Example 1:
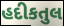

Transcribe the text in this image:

હદીકતુલ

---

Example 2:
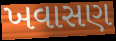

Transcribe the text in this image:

ખવાસણ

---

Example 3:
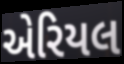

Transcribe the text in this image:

એરિયલ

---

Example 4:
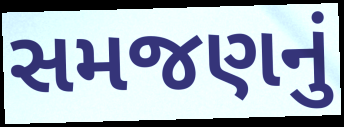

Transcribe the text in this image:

સમજણનું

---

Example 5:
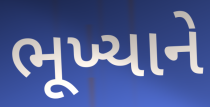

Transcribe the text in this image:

ભૂખ્યાને